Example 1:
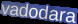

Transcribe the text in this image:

vadodara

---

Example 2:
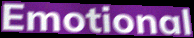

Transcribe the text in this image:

Emotional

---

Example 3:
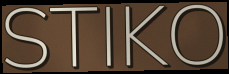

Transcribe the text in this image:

STIKO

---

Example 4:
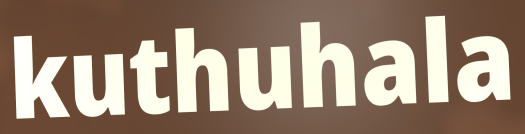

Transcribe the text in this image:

kuthuhala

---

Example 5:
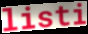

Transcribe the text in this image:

listi